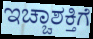
ಇಚ್ಚಾಶಕ್ತಿಗೆ